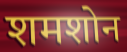
शमशोन